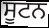
ਸੂਟਨ